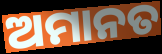
ଅମାନତ